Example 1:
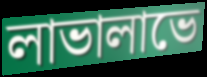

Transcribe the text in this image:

লাভালাভে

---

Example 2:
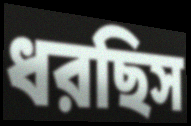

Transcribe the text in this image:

ধরছিস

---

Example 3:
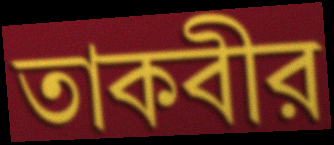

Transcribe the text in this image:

তাকবীর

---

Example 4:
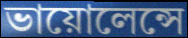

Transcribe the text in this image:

ভায়োলেন্সে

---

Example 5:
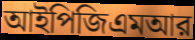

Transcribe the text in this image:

আইপিজিএমআর